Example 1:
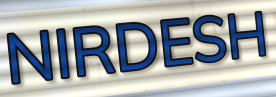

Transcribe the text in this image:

NIRDESH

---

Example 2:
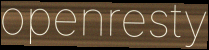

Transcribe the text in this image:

openresty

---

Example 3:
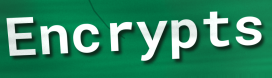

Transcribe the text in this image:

Encrypts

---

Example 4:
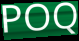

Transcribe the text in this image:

POQ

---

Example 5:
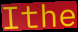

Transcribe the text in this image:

Ithe